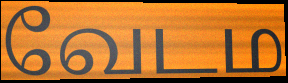
வேடம